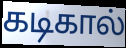
கடிகால்